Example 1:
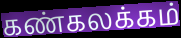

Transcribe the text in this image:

கண்கலக்கம்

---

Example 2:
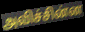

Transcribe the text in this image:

அவிச்சின்ன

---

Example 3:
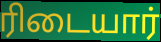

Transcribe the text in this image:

ரிடையார்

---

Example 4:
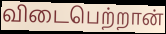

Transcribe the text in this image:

விடைபெற்றான்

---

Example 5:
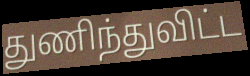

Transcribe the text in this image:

துணிந்துவிட்ட